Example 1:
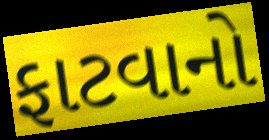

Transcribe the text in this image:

ફાટવાનો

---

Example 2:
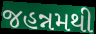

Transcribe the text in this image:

જહન્નમથી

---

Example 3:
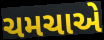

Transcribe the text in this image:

ચમચાએ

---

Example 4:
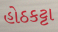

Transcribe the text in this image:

હોઠકટ્ટા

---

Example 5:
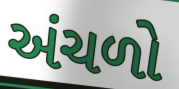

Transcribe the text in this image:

અંચળો